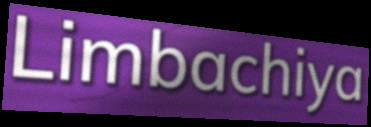
Limbachiya